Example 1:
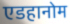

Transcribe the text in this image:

एडहानोम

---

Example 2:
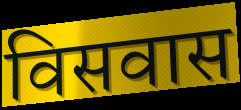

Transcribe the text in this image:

विसवास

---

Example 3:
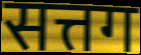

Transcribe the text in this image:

सत्तग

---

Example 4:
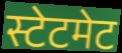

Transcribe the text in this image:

स्टेटमेट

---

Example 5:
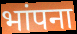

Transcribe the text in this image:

भांपना